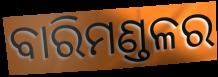
ବାରିମଣ୍ଡଳର